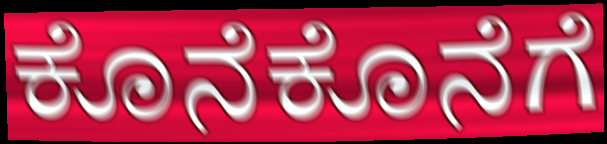
ಕೊನೆಕೊನೆಗೆ